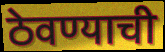
ठेवण्याची